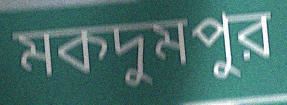
মকদুমপুর